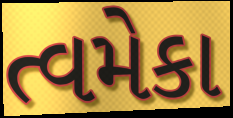
ત્વમેકા